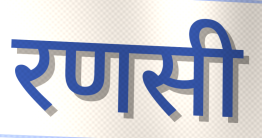
रणसी